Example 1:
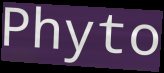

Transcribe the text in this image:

Phyto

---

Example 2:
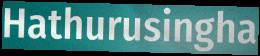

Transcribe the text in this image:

Hathurusingha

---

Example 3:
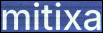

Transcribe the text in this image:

mitixa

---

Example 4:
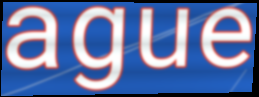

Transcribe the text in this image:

ague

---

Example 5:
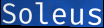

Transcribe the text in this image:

Soleus